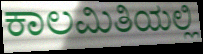
ಕಾಲಮಿತಿಯಲ್ಲಿ